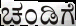
ಚಂಡಿಗೆ